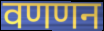
वणणन